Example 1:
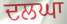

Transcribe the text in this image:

ਦਲਘਾ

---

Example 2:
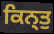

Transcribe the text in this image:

ਕਿਨ੍ਤੁ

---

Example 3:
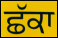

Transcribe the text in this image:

ਛੱਕਾ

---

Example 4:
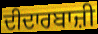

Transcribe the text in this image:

ਦੀਦਾਰਬਾਜ਼ੀ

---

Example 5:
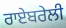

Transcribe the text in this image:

ਰਾਏਬਰੇਲੀ